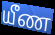
யீண